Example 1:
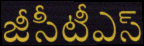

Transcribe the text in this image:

జీసీటీఎస్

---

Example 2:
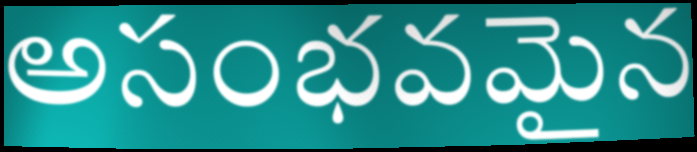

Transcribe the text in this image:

అసంభవమైన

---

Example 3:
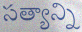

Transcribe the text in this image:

సత్యాన్ని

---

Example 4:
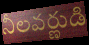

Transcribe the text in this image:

నీలవర్ణుడి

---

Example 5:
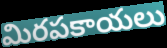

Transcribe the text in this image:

మిరపకాయలు